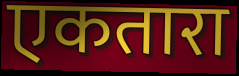
एकतारा